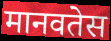
मानवतेस